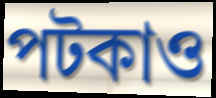
পটকাও